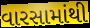
વારસામાંથી